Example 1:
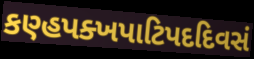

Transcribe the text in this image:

કણ્હપક્ખપાટિપદદિવસં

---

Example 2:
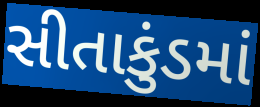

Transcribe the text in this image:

સીતાકુંડમાં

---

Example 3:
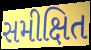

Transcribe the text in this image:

સમીક્ષિત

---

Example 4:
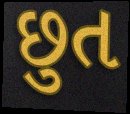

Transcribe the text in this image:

છુત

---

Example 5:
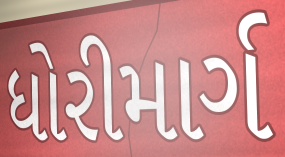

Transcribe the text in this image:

ધોરીમાર્ગ